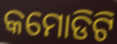
କମୋଡିଟି